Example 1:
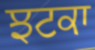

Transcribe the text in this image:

ਝਟਕਾ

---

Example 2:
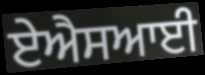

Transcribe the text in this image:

ਏਐਸਆਈ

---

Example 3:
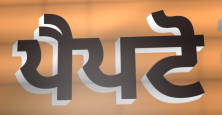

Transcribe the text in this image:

ਪੈਪਟੋ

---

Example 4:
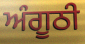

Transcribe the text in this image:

ਅੰਗੂਠੀ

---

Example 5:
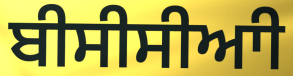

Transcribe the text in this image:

ਬੀਸੀਸੀਆੀ